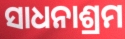
ସାଧନାଶ୍ରମ